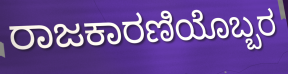
ರಾಜಕಾರಣಿಯೊಬ್ಬರ